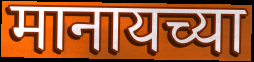
मानायच्या